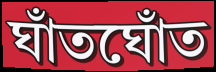
ঘাঁতঘোঁত